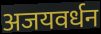
अजयवर्धन